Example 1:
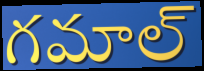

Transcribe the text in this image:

గమాల్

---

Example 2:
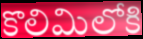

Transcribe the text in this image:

కొలిమిలోకి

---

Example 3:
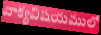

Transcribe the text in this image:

వాక్యవిషయములో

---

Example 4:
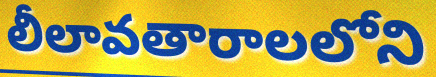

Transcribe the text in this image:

లీలావతారాలలోని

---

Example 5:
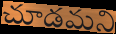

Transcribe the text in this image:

చూడమని